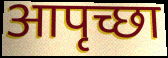
आपृच्छा